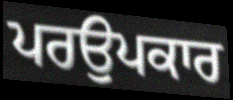
ਪਰਉਪਕਾਰ